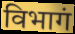
विभागं